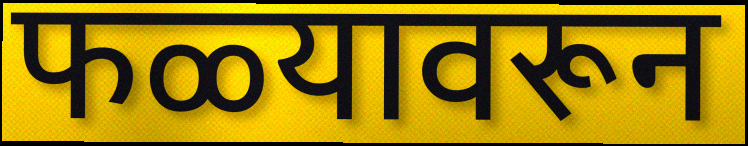
फळ्यावरून